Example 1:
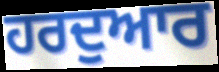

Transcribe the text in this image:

ਹਰਦੁਆਰ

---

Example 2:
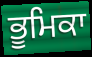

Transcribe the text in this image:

ਭੂਮਿਕਾ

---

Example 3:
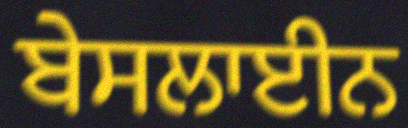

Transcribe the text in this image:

ਬੇਸਲਾਈਨ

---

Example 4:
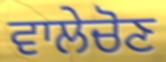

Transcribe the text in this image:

ਵਾਲੇਚੋਣ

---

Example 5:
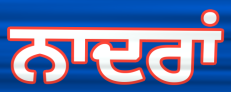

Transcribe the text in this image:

ਨਾਦਰਾਂ